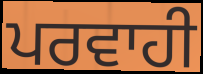
ਪਰਵਾਹੀ